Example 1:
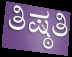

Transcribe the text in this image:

ತಿಷ್ಠತಿ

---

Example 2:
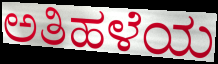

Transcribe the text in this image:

ಅತಿಹಳೆಯ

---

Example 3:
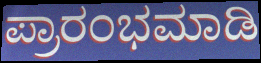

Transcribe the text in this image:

ಪ್ರಾರಂಭಮಾಡಿ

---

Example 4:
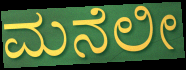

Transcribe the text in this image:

ಮನೆಲೀ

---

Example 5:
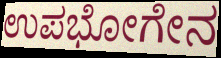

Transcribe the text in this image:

ಉಪಭೋಗೇನ